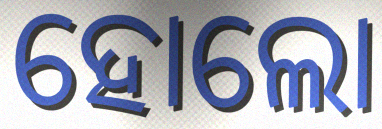
ହୋଲୋ